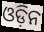
ଓଡ଼ିନ